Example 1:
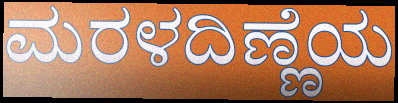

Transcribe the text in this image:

ಮರಳದಿಣ್ಣೆಯ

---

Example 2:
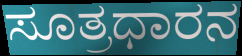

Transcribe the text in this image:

ಸೂತ್ರಧಾರನ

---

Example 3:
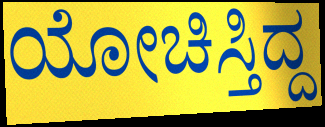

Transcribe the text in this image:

ಯೋಚಿಸ್ತಿದ್ದ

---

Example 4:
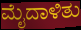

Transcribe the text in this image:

ಮೈದಾಳಿತು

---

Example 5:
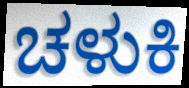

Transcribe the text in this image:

ಚಳುಕಿ